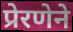
प्रेरणेने